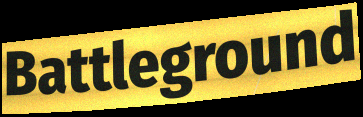
Battleground